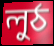
লুঠ